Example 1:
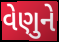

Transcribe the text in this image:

વેણુને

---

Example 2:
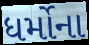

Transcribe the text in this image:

ધર્મોના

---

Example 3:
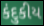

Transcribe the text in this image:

કંદુકીય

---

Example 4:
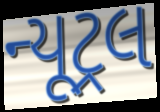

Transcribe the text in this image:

ન્યૂટ્રલ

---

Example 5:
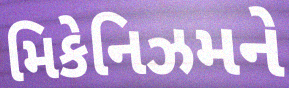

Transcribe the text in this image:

મિકેનિઝમને